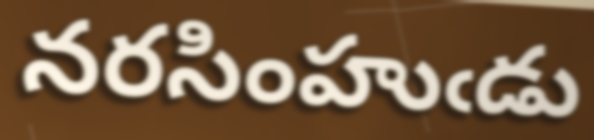
నరసింహుఁడు